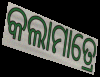
କଲାମାତ୍ରେ